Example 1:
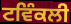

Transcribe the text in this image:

ਟਵਿੰਕਲੀ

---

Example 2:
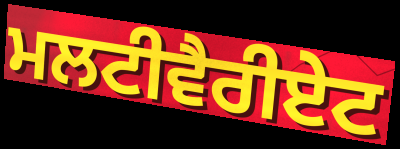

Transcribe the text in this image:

ਮਲਟੀਵੈਰੀਏਟ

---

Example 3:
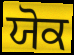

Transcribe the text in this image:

ਯੋਕ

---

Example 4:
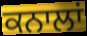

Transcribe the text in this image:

ਕਨਾਲਾਂ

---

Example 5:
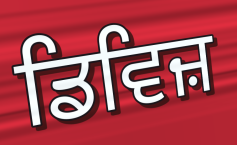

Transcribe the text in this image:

ਡਿਵਿਜ਼